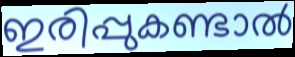
ഇരിപ്പുകണ്ടാൽ